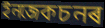
ইনজেকচনৰ